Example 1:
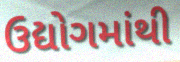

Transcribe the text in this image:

ઉદ્યોગમાંથી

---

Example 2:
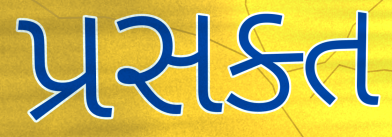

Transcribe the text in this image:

પ્રસક્ત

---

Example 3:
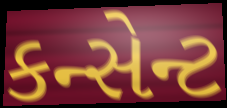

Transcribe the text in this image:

કન્સેન્ટ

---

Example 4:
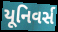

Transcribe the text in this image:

યૂનિવર્સ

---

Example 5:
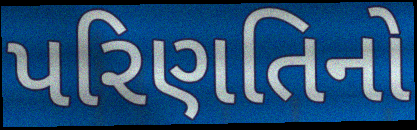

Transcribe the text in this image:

પરિણતિનો